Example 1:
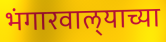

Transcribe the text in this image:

भंगारवाल्याच्या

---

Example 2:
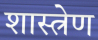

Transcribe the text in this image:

शास्त्रेण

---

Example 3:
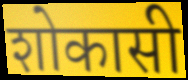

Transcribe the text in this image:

शोकासी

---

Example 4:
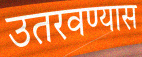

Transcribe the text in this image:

उतरवण्यास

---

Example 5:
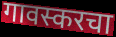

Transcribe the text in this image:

गावस्करचा